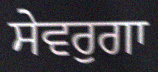
ਸੇਵਰੁਗਾ